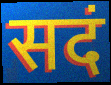
सदं